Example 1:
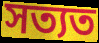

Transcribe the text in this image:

সত্যত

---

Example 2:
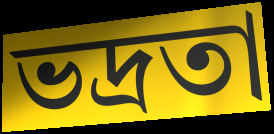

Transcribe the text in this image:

ভদ্ৰতা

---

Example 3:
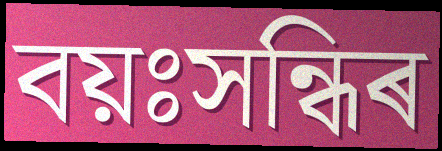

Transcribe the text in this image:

বয়ঃসন্ধিৰ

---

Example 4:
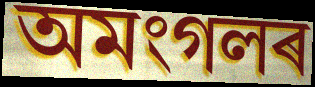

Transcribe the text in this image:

অমংগলৰ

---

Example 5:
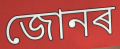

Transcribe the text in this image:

জোনৰ